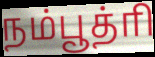
நம்பூத்ரி